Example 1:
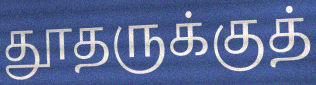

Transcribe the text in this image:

தூதருக்குத்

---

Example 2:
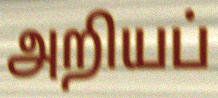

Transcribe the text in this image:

அறியப்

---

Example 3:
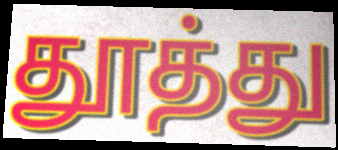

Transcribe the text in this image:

தூத்து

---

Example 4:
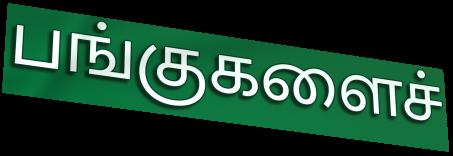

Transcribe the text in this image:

பங்குகளைச்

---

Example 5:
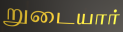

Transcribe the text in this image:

றுடையார்